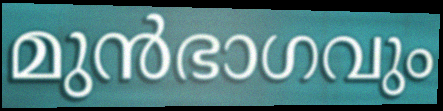
മുൻഭാഗവും